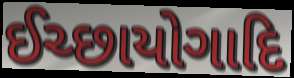
ઈચ્છાયોગાદિ